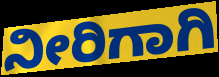
ನೀರಿಗಾಗಿ